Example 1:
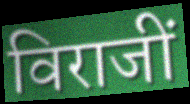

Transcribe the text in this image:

विराजीं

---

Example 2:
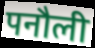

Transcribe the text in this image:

पनौली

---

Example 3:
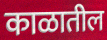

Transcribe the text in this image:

काळातील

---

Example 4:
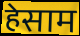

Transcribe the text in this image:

हेसाम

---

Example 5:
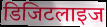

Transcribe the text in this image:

डिजिटलाइज